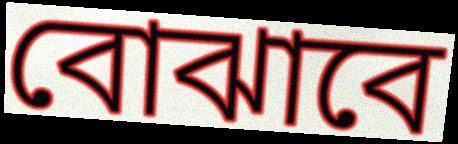
বোঝাবে